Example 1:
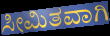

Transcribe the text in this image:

ಸೀಮಿತವಾಗಿ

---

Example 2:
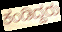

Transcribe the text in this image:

ಕಂಡಿದ್ದರು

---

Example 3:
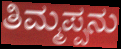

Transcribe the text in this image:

ತಿಮ್ಮಪ್ಪನು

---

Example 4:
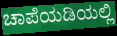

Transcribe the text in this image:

ಚಾಪೆಯಡಿಯಲ್ಲಿ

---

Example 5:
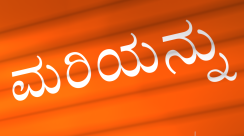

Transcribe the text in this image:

ಮರಿಯನ್ನು